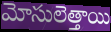
మోసులెత్తాయి